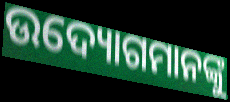
ଉଦ୍ୟୋଗମାନଙ୍କୁ